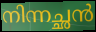
നിന്നച്ഛൻ